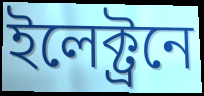
ইলেক্ট্ৰনে